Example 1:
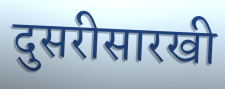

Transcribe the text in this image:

दुसरीसारखी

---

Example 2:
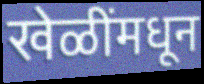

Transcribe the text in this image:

खेळींमधून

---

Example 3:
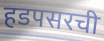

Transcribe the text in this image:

हडपसरची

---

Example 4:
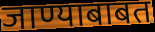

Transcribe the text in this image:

जाण्याबाबत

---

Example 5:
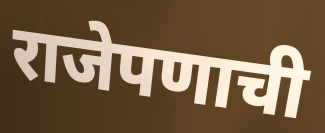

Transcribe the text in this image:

राजेपणाची